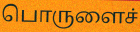
பொருளைச்